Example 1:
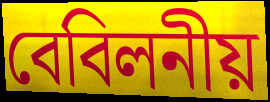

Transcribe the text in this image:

বেবিলনীয়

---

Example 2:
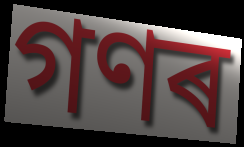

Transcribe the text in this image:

গণৰ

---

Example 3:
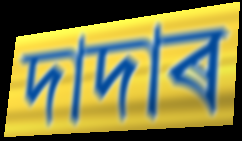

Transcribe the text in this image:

দাদাৰ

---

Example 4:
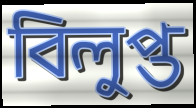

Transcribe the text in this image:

বিলুপ্ত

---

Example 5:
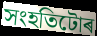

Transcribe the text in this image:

সংহতিটোৰ